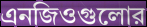
এনজিওগুলোর